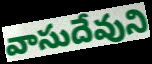
వాసుదేవుని